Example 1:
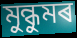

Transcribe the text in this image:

মুন্ধুমৰ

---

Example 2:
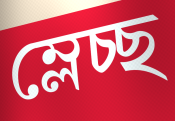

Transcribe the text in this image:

ম্লেচ্ছ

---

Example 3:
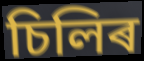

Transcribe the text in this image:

চিলিৰ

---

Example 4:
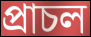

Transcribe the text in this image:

প্ৰাচল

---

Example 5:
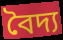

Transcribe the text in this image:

বৈদ্য